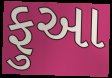
ફુઆ